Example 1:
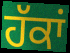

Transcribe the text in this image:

ਹੱਕਾਂ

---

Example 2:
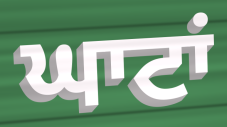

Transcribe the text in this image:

ਘਾਟਾਂ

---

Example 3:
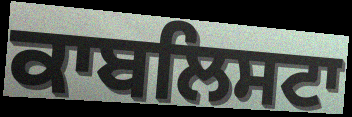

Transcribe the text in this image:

ਕਾਬਲਿਸਟਾ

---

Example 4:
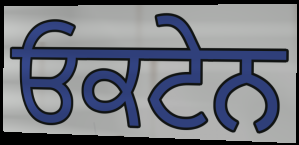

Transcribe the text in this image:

ਓਕਟੇਨ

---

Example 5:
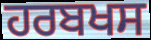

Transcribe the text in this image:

ਹਰਬਖਸ